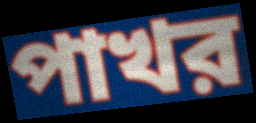
পাখর